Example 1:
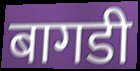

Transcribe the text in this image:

बागडी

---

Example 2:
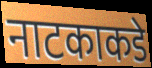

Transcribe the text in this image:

नाटकाकडे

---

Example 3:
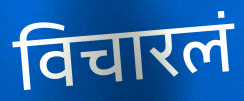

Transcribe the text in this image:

विचारलं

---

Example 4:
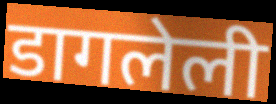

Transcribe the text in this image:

डागलेली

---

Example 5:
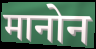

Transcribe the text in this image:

मानोन